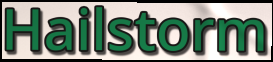
Hailstorm